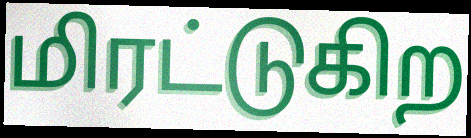
மிரட்டுகிற